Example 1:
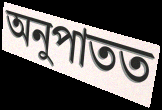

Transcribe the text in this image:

অনুপাতত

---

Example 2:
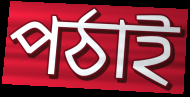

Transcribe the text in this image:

পঠাই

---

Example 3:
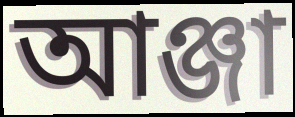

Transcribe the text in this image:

আঞ্জা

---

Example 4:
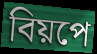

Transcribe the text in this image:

বিয়পে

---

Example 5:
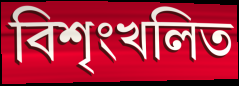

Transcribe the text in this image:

বিশৃংখলিত